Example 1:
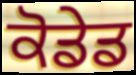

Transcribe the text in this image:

ਕੋਡੇਡ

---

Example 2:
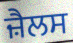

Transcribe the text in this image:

ਜ਼ੈਲਸ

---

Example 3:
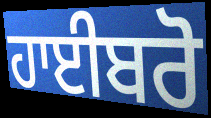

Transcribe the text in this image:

ਹਾਈਬਰੋ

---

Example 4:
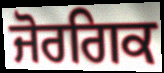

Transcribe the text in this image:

ਜੋਰਗਿਕ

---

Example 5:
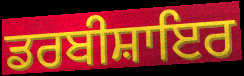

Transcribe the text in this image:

ਡਰਬੀਸ਼ਾਇਰ